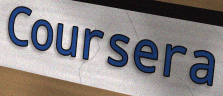
Coursera